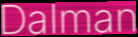
Dalman